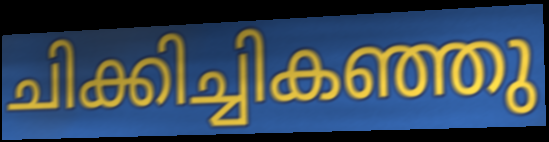
ചിക്കിച്ചികഞ്ഞു